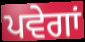
ਪਵੇਗਾਂ